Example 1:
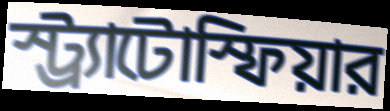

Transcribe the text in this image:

স্ট্র্যাটোস্ফিয়ার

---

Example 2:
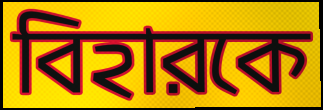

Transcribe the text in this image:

বিহারকে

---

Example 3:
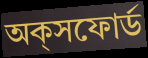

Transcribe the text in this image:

অক্‌সফোর্ড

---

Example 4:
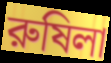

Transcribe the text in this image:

রুষিলা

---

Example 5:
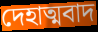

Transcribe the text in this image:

দেহাত্মবাদ